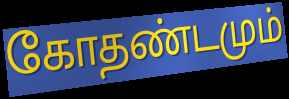
கோதண்டமும்